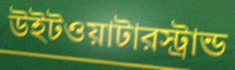
উইটওয়াটারস্ট্রান্ড